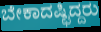
ಬೇಕಾದಷ್ಟಿದ್ದರು